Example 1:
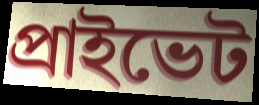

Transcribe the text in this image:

প্রাইভেট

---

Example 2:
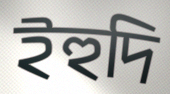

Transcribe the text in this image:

ইহুদি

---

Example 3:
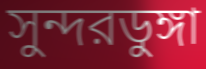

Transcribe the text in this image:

সুন্দরডুঙ্গা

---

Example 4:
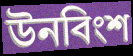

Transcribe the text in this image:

উনবিংশ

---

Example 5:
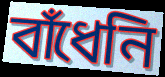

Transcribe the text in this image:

বাঁধেনি